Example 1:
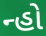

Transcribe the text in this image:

ન્હો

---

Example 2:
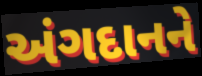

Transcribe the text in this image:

અંગદાનને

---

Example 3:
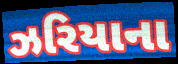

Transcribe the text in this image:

ઝરિયાના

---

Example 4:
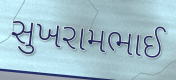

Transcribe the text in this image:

સુખરામભાઈ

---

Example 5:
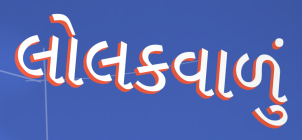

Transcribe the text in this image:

લોલકવાળું